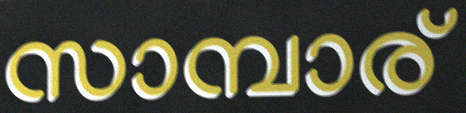
സാമ്പാര്